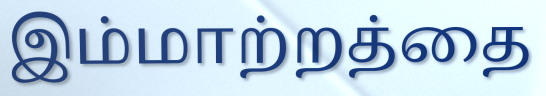
இம்மாற்றத்தை